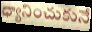
ధ్యానించుకునే